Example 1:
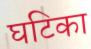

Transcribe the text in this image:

घटिका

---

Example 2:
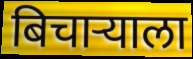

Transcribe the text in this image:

बिचार्‍याला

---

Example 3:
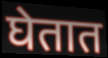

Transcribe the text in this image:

घेतात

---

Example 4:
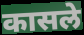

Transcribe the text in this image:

कासले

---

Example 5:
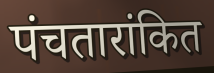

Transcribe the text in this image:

पंचतारांकित